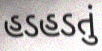
હડહડતું